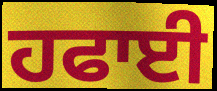
ਹਫਾਈ